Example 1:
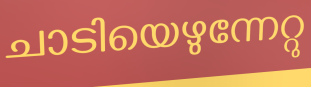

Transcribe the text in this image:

ചാടിയെഴുന്നേറ്റു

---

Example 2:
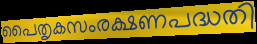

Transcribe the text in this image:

പൈതൃകസംരക്ഷണപദ്ധതി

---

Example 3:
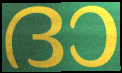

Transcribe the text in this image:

ദാ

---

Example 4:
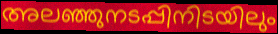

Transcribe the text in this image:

അലഞ്ഞുനടപ്പിനിടയിലും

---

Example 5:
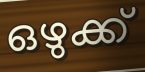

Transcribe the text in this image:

ഒഴുക്ക്